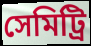
সেমিট্রি